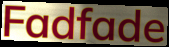
Fadfade